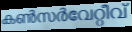
കൺസർവേറ്റീവ്